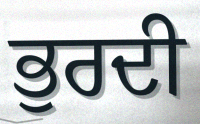
ਭੁਰਦੀ